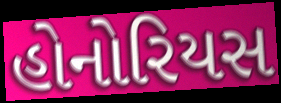
હોનોરિયસ